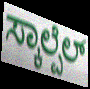
ಸ್ಕಾಲ್ಪೆಲ್